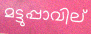
മട്ടുപ്പാവില്